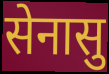
सेनासु